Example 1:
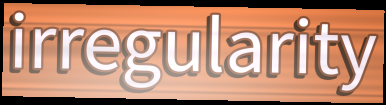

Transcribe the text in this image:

irregularity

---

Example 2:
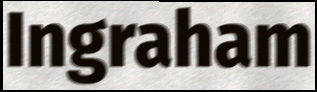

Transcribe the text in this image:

Ingraham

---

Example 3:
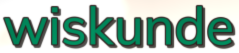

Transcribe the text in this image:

wiskunde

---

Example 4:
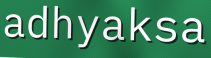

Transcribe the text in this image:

adhyaksa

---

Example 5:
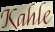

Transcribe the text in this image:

Kahle